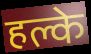
हल्‍के